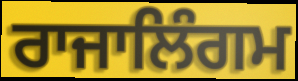
ਰਾਜਾਲਿੰਗਮ